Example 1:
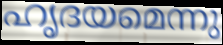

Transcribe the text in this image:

ഹൃദയമെന്നു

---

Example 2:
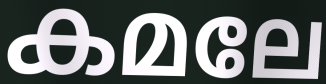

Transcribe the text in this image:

കമലേ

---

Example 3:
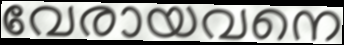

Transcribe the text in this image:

വേരായവനെ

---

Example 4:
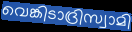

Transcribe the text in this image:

വെങ്കിടാദ്രിസ്വാമി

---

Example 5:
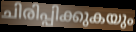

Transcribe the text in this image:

ചിരിപ്പിക്കുകയും